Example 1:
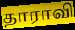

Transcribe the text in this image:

தாராவி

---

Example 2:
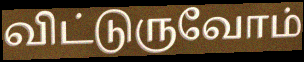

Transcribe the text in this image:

விட்டுருவோம்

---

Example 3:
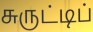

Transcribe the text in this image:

சுருட்டிப்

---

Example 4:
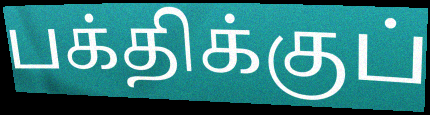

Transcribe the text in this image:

பக்திக்குப்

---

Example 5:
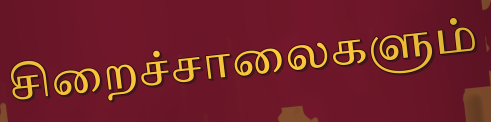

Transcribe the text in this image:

சிறைச்சாலைகளும்